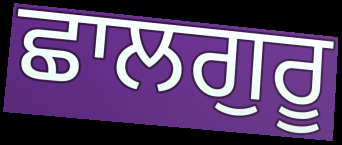
ਛਾਲਗੁਰੂ